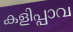
കളിപ്പാവ